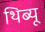
थिब्यू